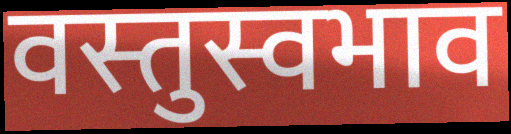
वस्तुस्वभाव